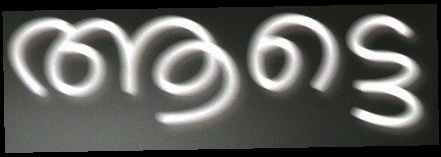
ആട്ടെ